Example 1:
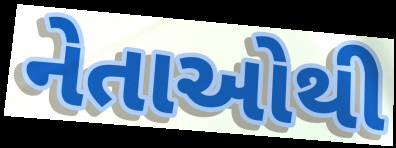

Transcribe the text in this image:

નેતાઓથી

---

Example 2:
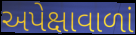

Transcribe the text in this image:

અપેક્ષાવાળાં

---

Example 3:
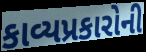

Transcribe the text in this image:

કાવ્યપ્રકારોની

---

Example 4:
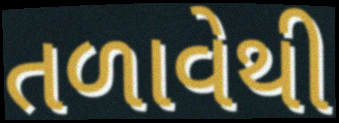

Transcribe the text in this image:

તળાવેથી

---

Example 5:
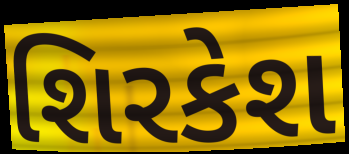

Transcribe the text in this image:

શિરકેશ